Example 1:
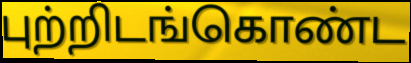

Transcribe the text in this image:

புற்றிடங்கொண்ட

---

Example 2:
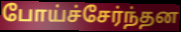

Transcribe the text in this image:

போய்ச்சேர்ந்தன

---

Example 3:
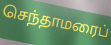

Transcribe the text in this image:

செந்தாமரைப்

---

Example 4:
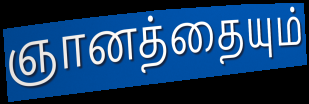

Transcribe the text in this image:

ஞானத்தையும்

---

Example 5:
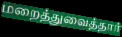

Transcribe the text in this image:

மறைத்துவைத்தார்